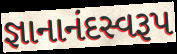
જ્ઞાનાનંદસ્વરૂપ